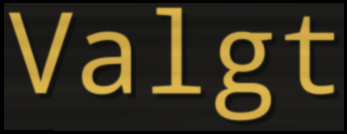
Valgt